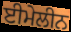
ਈਮੇਲੀਨ